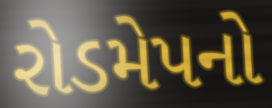
રોડમેપનો